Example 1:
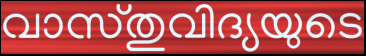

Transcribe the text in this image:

വാസ്തുവിദ്യയുടെ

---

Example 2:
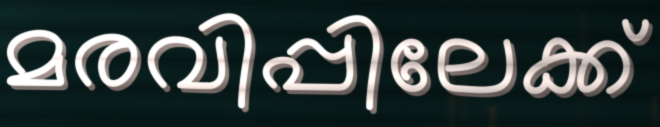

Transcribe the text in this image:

മരവിപ്പിലേക്ക്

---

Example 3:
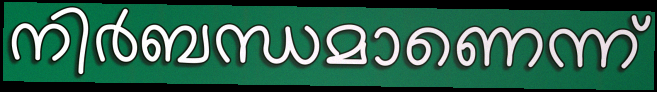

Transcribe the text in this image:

നിർബന്ധമാണെന്ന്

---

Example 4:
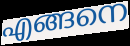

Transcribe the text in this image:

എങ്ങനെ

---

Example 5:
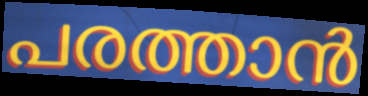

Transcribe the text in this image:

പരത്താൻ